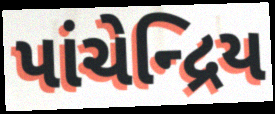
પાંચેન્દ્રિય